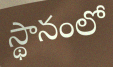
స్థానంలో